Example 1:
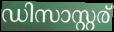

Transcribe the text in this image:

ഡിസാസ്റ്റര്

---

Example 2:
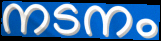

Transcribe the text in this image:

നടനം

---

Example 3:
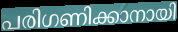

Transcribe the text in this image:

പരിഗണിക്കാനായി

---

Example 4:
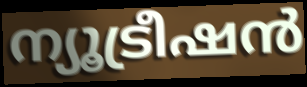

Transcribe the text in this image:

ന്യൂട്രീഷൻ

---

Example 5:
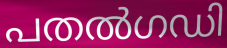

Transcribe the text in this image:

പതൽഗഡി